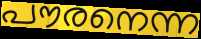
പൗരനെന്ന